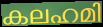
കലഹമി